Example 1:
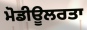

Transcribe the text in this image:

ਮੋਡੀਊਲਰਤਾ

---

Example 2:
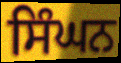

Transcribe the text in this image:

ਸਿੰਘਨ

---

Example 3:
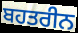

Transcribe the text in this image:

ਬਹਤਰੀਨ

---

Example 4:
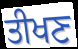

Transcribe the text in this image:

ਤੀਖਣ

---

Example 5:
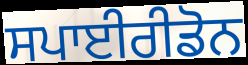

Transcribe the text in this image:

ਸਪਾਈਰੀਡੋਨ